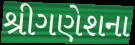
શ્રીગણેશના